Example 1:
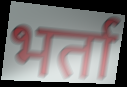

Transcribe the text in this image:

भर्ता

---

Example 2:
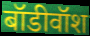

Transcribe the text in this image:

बॉडीवॉश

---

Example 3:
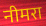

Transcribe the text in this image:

नीमरा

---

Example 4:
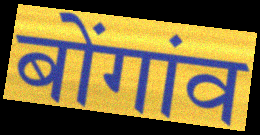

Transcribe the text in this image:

बोंगांव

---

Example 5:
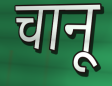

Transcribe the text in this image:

चानू